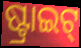
ଷ୍ଟ୍ରାଇଟ୍